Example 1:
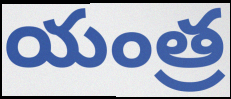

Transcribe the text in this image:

యంత్ర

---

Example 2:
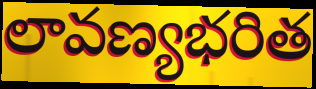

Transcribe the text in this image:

లావణ్యభరిత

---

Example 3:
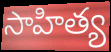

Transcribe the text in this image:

సాహిత్య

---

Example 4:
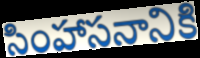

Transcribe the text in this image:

సింహాసనానికి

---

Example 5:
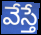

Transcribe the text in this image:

వేస్తే